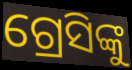
ଗ୍ରେସିଙ୍କୁ